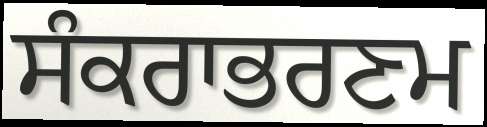
ਸੰਕਰਾਭਰਣਮ